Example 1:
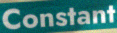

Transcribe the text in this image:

Constant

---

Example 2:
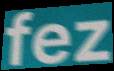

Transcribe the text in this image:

fez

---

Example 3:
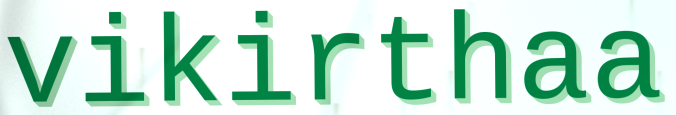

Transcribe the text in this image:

vikirthaa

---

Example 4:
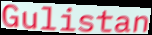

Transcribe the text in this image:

Gulistan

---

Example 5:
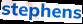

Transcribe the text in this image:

stephens